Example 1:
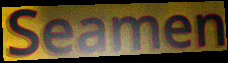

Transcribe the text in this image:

Seamen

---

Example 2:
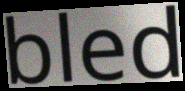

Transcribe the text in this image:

bled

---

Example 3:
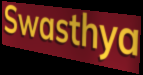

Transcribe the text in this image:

Swasthya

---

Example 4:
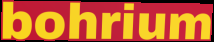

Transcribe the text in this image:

bohrium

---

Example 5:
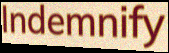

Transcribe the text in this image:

Indemnify